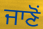
ਜਾਣੋਂ